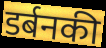
डर्बनकी